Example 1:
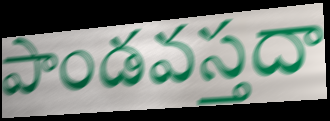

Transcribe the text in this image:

పాండవస్తదా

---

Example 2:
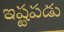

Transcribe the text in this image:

ఇష్టపడు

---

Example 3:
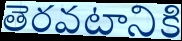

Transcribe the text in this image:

తెరవటానికి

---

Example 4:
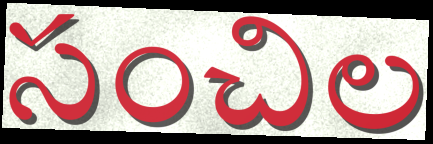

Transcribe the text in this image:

సంచిల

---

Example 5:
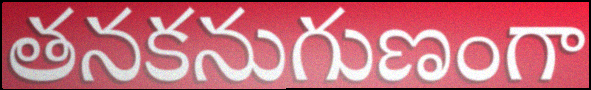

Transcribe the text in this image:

తనకనుగుణంగా